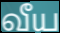
வீய